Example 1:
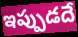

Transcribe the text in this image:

ఇప్పుడదే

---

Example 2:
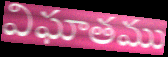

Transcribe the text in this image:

విఘాతము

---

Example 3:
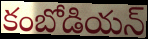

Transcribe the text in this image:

కంబోడియన్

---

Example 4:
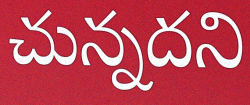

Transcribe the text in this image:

చున్నదని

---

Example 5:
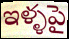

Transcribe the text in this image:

ఇళ్ళపై